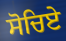
ਸੋਚਿਏ